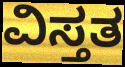
ವಿಸ್ತತ